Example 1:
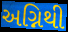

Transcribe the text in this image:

અગ્નિથી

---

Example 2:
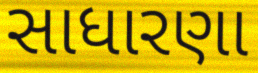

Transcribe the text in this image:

સાધારણા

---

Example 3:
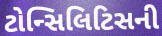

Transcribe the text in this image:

ટોન્સિલિટિસની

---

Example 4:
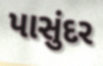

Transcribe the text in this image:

પાસુંદર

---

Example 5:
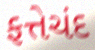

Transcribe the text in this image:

ફત્તેચંદ